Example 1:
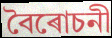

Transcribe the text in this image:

বৈৰোচনী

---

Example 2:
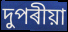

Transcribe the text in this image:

দুপৰীয়া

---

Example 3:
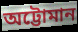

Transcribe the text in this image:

অট্টোমান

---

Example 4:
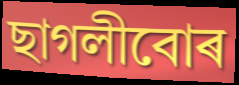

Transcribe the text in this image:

ছাগলীবোৰ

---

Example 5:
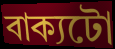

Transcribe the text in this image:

বাক্য়টো